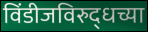
विंडीजविरुद्धच्या